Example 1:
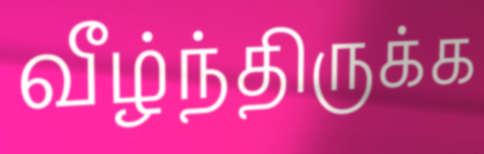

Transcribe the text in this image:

வீழ்ந்திருக்க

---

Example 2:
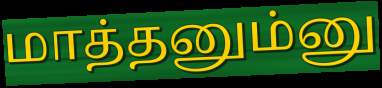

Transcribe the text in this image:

மாத்தனும்னு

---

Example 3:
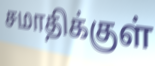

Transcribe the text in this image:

சமாதிக்குள்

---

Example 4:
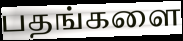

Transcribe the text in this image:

பதங்களை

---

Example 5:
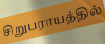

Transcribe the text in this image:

சிறுபராயத்தில்